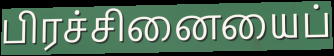
பிரச்சினையைப்